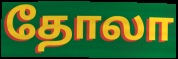
தோலா